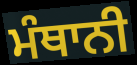
ਮੰਥਾਨੀ